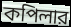
কপিলার